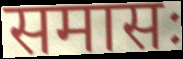
समासः